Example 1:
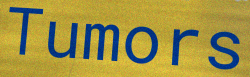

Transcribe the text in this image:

Tumors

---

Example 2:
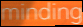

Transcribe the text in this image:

minding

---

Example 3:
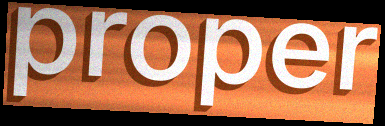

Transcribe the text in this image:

proper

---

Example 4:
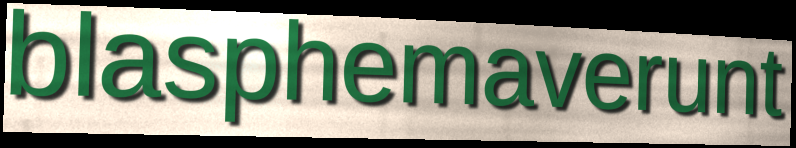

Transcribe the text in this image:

blasphemaverunt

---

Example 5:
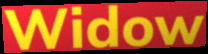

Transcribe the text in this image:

Widow